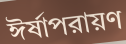
ঈর্ষাপরায়ণ